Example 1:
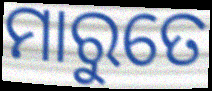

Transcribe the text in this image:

ମାରୁତେ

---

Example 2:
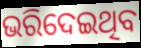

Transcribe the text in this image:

ଭରିଦେଇଥିବ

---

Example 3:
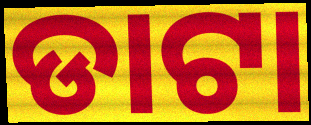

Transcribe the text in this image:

ଡାଟା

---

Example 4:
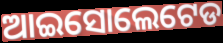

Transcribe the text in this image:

ଆଇସୋଲେଟେଡ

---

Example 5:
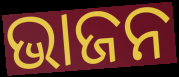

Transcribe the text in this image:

ଭାଜନ